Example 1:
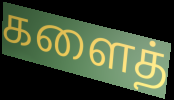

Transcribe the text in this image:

களைத்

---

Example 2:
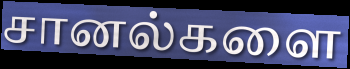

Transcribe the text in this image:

சானல்களை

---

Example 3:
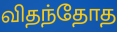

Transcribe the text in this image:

விதந்தோத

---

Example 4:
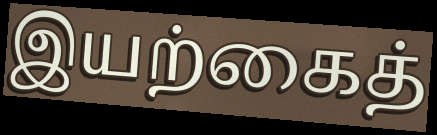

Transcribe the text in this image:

இயற்கைத்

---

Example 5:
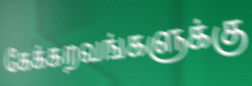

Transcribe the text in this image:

கேக்கறவங்களுக்கு